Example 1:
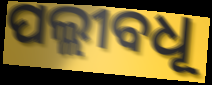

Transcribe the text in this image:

ପଲ୍ଲୀବଧୂ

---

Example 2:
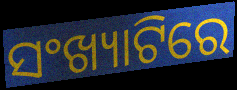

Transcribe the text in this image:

ସଂଖ୍ୟାଟିରେ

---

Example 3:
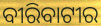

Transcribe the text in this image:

ବୀରିବାଟୀର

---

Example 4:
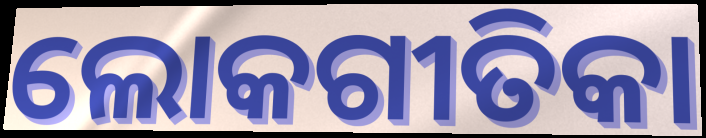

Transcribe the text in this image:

ଲୋକଗୀତିକା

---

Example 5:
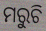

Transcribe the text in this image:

ମରୁଚି